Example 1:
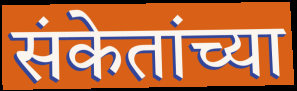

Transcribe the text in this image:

संकेतांच्या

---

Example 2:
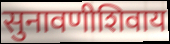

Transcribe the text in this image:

सुनावणीशिवाय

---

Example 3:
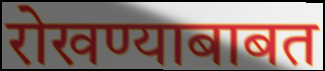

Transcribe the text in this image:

रोखण्याबाबत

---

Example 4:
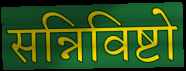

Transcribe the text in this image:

सन्निविष्टो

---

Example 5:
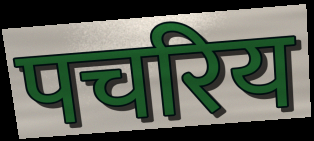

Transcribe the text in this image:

पचरिय